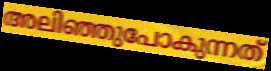
അലിഞ്ഞുപോകുന്നത്